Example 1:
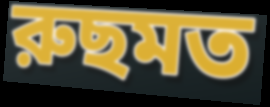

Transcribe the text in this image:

রুছমত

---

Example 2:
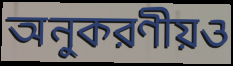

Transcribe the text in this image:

অনুকরণীয়ও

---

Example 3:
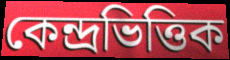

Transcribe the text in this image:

কেন্দ্রভিত্তিক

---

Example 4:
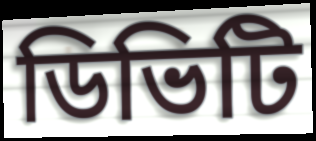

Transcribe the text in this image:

ডিভিটি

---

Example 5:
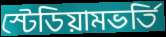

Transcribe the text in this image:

স্টেডিয়ামভর্তি